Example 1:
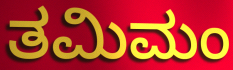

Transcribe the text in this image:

ತಮಿಮಂ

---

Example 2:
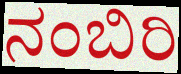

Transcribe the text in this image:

ನಂಬಿರಿ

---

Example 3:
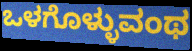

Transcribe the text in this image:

ಒಳಗೊಳ್ಳುವಂಥ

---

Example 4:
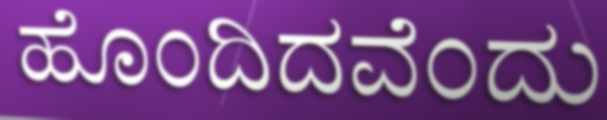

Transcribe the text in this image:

ಹೊಂದಿದವೆಂದು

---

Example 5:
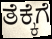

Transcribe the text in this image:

ತೆಕ್ಕೆಗೆ